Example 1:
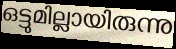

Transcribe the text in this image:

ഒട്ടുമില്ലായിരുന്നു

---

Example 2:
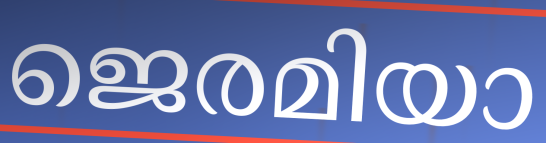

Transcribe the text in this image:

ജെരമിയാ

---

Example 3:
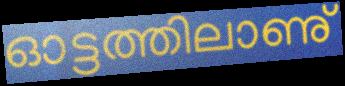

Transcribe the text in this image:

ഓട്ടത്തിലാണു്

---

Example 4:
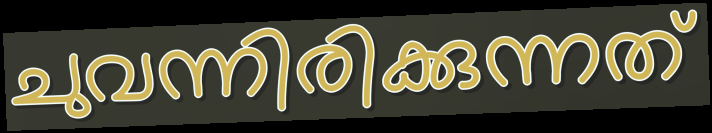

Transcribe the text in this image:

ചുവന്നിരിക്കുന്നത്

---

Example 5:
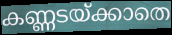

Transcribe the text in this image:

കണ്ണടയ്ക്കാതെ